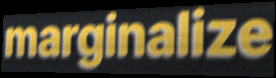
marginalize